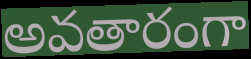
అవతారంగా